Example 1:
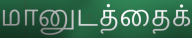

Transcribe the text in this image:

மானுடத்தைக்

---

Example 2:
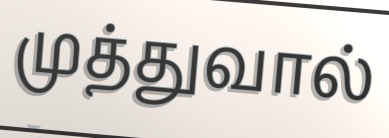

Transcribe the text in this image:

முத்துவால்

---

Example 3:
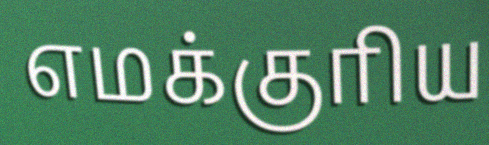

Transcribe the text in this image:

எமக்குரிய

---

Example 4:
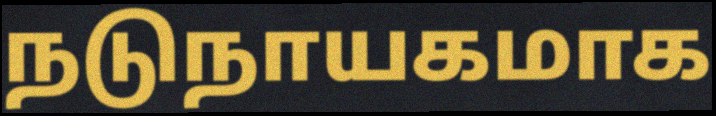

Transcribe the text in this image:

நடுநாயகமாக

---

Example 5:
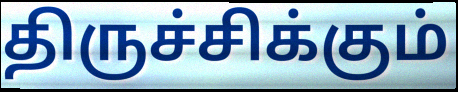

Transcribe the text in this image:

திருச்சிக்கும்